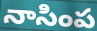
నాసింప